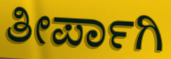
ತೀರ್ಪಾಗಿ